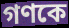
গণকে